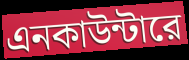
এনকাউন্টারে